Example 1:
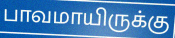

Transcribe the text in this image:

பாவமாயிருக்கு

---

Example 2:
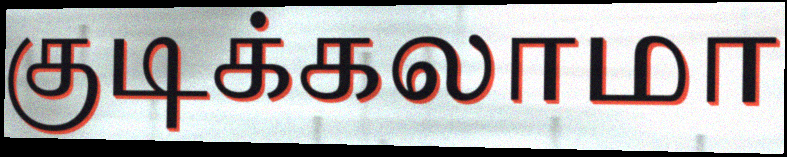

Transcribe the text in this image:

குடிக்கலாமா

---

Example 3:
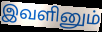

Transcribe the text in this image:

இவளினும்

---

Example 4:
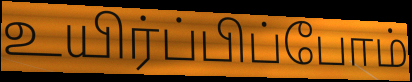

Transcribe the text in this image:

உயிர்ப்பிப்போம்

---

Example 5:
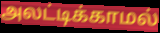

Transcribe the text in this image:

அலட்டிக்காமல்